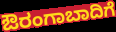
ಔರಂಗಾಬಾದಿಗೆ